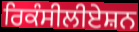
ਰਿਕੰਸੀਲੀਏਸ਼ਨ